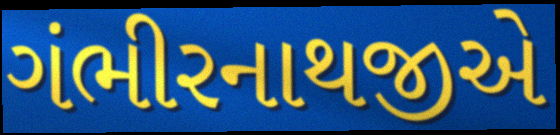
ગંભીરનાથજીએ